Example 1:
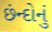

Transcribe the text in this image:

છંન્દોનું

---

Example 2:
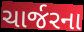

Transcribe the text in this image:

ચાર્જરના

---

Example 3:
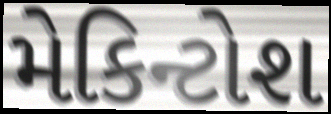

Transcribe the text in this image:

મેકિન્ટોશ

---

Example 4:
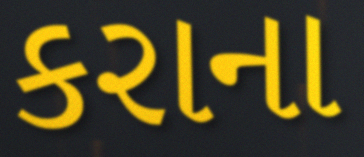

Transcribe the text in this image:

કરાના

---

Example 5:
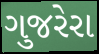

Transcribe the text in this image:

ગુજરેરા